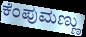
ಕೆಂಪುಮಣ್ಣು